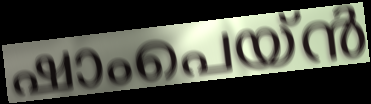
ഷാംപെയ്ൻ